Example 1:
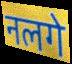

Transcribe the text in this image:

नलगे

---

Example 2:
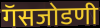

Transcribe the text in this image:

गॅसजोडणी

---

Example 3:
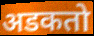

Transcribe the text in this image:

अडकतो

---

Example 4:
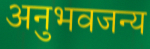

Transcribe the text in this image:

अनुभवजन्य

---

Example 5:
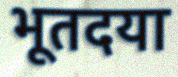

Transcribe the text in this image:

भूतदया